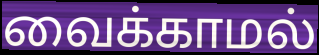
வைக்காமல்